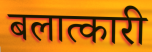
बलात्कारी